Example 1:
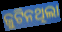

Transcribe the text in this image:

ଜୁଟିନଥିଲା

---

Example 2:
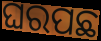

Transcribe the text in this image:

ଘରପଛ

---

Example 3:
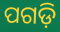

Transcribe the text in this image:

ପଗଡ଼ି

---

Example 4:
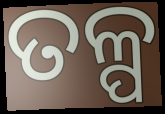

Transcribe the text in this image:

ତଳ୍ପ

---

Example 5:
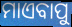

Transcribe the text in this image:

ମାଏବାପୁ